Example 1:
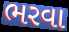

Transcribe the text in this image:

ભરવા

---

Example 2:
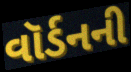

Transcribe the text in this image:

વૉર્ડનની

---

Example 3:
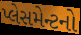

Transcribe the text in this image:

પ્લેસમેન્ટનો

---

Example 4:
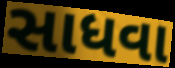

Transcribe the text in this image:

સાધવા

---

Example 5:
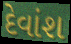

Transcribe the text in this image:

દેવાંશ